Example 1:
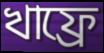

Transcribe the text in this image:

খাফ্রে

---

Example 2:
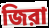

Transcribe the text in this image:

জিরা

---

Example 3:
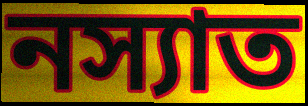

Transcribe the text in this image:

নস্যাত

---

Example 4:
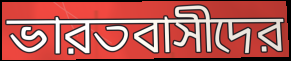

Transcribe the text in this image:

ভারতবাসীদের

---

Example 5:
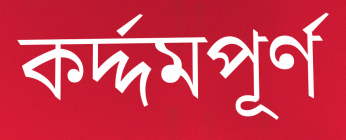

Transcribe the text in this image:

কর্দ্দমপূর্ণ